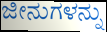
ಜೀನುಗಳನ್ನು